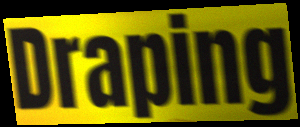
Draping